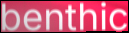
benthic